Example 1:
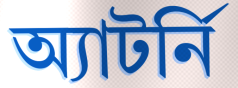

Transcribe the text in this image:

অ্যাটর্নি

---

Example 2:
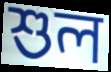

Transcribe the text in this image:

শুল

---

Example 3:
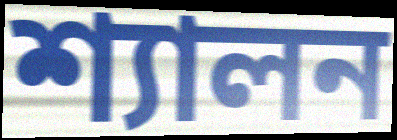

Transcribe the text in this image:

শ্যালন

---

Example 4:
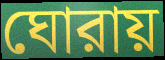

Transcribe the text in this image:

ঘোরায়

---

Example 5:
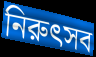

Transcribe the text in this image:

নিরুৎসব